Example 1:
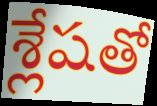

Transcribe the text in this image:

శ్లేషతో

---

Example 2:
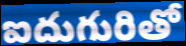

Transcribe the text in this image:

ఐదుగురితో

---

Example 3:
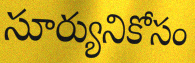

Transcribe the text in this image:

సూర్యునికోసం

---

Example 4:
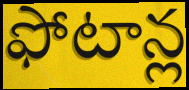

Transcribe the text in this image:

ఫోటాన్ల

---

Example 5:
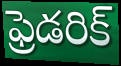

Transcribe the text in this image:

ఫ్రెడరిక్